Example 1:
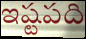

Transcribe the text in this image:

ఇష్టపది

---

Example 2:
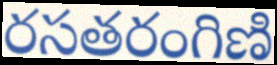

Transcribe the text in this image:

రసతరంగిణి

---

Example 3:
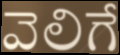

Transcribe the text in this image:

వెలిగే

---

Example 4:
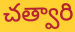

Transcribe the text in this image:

చత్వారి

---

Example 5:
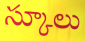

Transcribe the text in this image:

స్కూలు